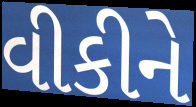
વીકીને